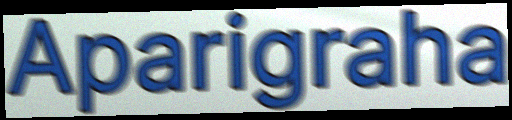
Aparigraha